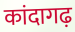
कांदागढ़